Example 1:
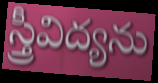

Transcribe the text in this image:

స్త్రీవిద్యను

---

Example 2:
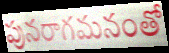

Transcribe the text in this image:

పునరాగమనంతో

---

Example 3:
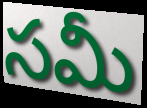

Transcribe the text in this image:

సమీ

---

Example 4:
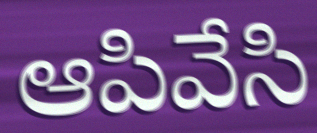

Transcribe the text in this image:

ఆపివేసి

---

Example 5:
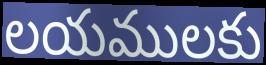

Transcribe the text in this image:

లయములకు